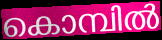
കൊമ്പിൽ